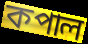
কপাল